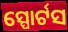
ସ୍ପୋର୍ଟସ